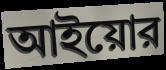
আইয়োর